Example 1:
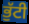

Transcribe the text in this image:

ਭੁੱਟੀ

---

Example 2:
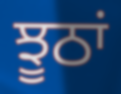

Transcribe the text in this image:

ਝੂਠਾਂ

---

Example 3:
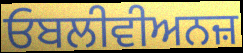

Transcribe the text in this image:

ਓਬਲੀਵੀਅਨਜ਼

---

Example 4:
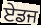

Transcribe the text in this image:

ਏਡਜ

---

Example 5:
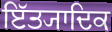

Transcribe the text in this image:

ਇੱਤ੍ਯਾਦਿਕ